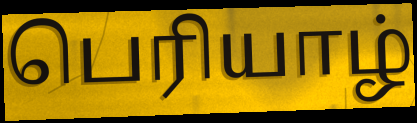
பெரியாழ்